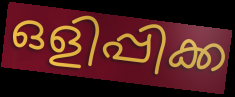
ഒളിപ്പിക്ക